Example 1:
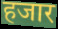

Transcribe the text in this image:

हजार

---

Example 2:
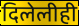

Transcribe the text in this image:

दिलेलीही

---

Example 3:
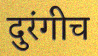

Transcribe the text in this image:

दुरंगीच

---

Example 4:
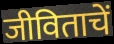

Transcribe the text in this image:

जीविताचें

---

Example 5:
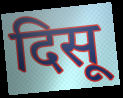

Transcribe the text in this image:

दिसू